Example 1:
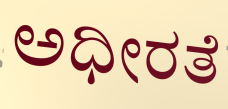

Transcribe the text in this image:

ಅಧೀರತೆ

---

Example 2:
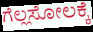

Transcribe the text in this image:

ಗೆಲ್ಲಸೋಲಕ್ಕೆ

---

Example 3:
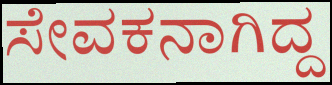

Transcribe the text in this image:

ಸೇವಕನಾಗಿದ್ದ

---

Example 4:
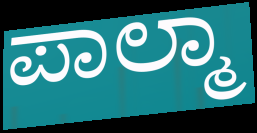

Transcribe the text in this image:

ಪಾಲ್ಮಾ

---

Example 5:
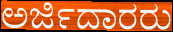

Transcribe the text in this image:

ಅರ್ಜಿದಾರರು